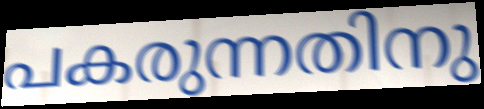
പകരുന്നതിനു